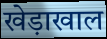
खेड़ाखाल